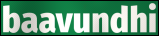
baavundhi